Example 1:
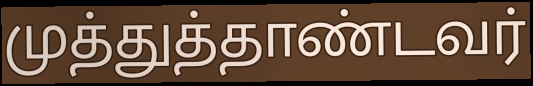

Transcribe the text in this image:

முத்துத்தாண்டவர்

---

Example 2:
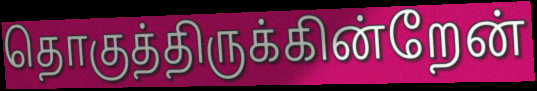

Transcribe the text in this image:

தொகுத்திருக்கின்றேன்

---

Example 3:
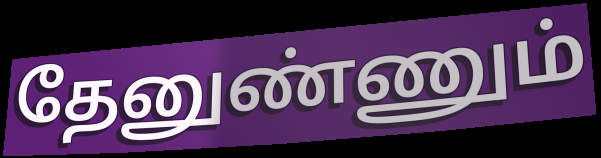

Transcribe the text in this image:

தேனுண்ணும்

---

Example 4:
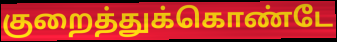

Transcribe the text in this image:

குறைத்துக்கொண்டே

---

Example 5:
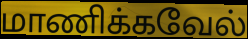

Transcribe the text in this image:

மாணிக்கவேல்